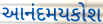
આનંદમયકોશ